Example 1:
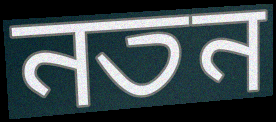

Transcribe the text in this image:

নতন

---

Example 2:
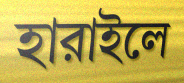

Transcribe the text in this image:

হারাইলে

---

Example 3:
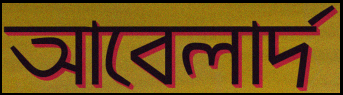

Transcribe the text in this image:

আবেলার্দ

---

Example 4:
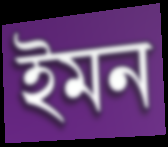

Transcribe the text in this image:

ইমন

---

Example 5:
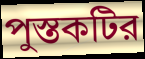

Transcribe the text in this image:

পুস্তকটির